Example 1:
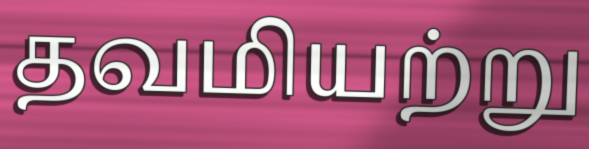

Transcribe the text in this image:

தவமியற்று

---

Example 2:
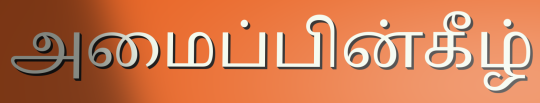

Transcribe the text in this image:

அமைப்பின்கீழ்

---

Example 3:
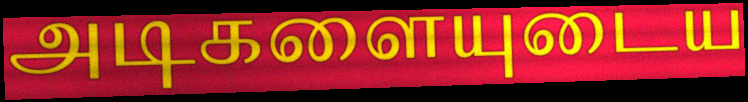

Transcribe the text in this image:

அடிகளையுடைய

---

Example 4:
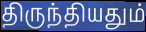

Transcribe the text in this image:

திருந்தியதும்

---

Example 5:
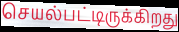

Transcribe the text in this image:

செயல்பட்டிருக்கிறது